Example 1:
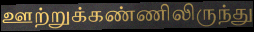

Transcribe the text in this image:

ஊற்றுக்கண்ணிலிருந்து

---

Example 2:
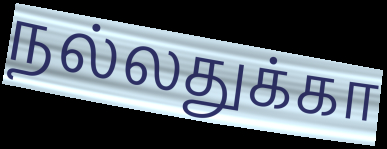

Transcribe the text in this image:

நல்லதுக்கா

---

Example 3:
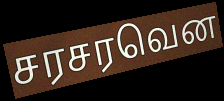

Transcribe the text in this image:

சரசரவென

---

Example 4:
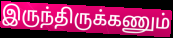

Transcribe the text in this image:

இருந்திருக்கணும்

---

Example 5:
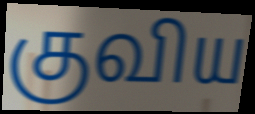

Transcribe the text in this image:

குவிய